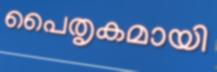
പൈതൃകമായി